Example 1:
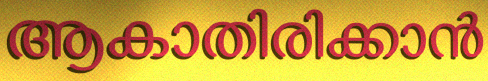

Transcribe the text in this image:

ആകാതിരിക്കാൻ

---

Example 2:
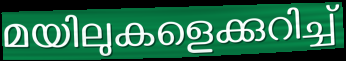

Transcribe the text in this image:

മയിലുകളെക്കുറിച്ച്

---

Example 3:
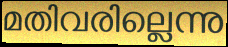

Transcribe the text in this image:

മതിവരില്ലെന്നു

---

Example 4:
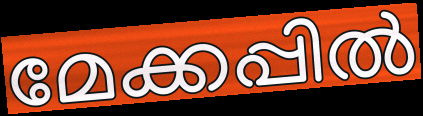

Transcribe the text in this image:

മേക്കപ്പിൽ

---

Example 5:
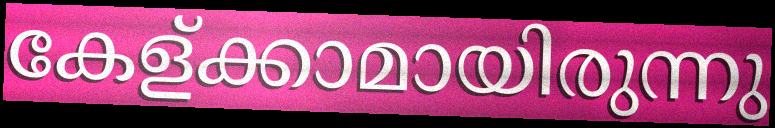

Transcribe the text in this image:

കേള്ക്കാമായിരുന്നു